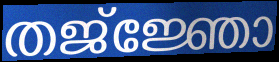
തജ്ജ്ഞോ